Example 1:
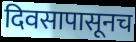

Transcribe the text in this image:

दिवसापासूनच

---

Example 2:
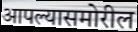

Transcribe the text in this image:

आपल्यासमोरील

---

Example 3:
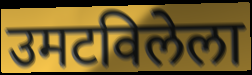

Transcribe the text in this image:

उमटविलेला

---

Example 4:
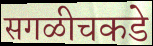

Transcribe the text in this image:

सगळीचकडे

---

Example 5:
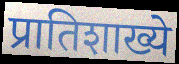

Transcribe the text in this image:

प्रातिशाख्ये